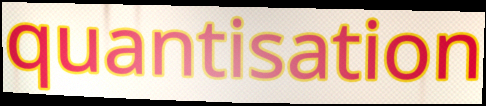
quantisation